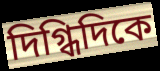
দিগ্ধিদিকে